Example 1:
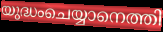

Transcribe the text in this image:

യുദ്ധംചെയ്യാനെത്തി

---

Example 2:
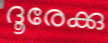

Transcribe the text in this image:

ദൂരേക്കു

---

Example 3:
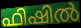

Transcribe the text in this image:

ഫിഷിൽ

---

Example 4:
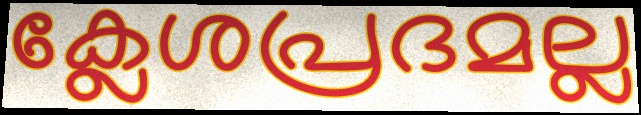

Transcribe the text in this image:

ക്ലേശപ്രദമല്ല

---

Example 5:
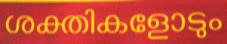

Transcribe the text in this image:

ശക്തികളോടും